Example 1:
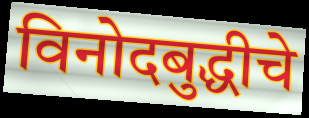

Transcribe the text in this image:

विनोदबुद्धीचे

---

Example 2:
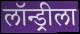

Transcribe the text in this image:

लॉन्ड्रीला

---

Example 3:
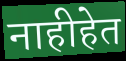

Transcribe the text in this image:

नाहीहेत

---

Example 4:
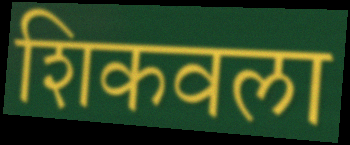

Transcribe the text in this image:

शिकवला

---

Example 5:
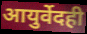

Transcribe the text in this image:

आयुर्वेदही